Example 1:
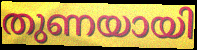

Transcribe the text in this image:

തുണയായി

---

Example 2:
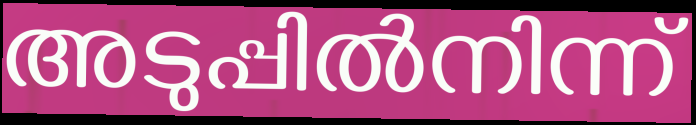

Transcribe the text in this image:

അടുപ്പിൽനിന്ന്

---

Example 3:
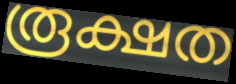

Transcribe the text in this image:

രൂക്ഷത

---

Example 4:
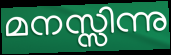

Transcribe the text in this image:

മനസ്സിന്നു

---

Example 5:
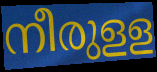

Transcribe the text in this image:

നീരുളള